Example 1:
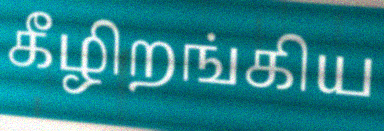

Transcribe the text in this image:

கீழிறங்கிய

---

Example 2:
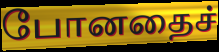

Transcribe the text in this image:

போனதைச்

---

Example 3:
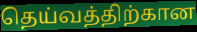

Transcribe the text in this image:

தெய்வத்திற்கான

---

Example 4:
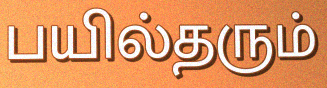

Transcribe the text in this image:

பயில்தரும்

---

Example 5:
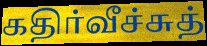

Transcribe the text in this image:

கதிர்வீச்சுத்